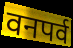
वनपर्व